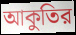
আকুতির